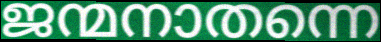
ജന്മനാതന്നെ